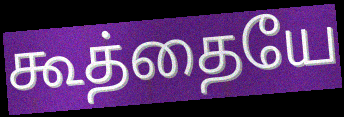
கூத்தையே